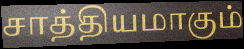
சாத்தியமாகும்